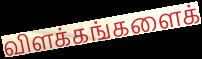
விளக்கங்களைக்